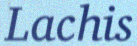
Lachis